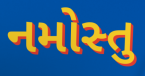
નમોસ્તુ